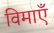
विमाएँ